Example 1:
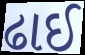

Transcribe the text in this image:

ઢાઈ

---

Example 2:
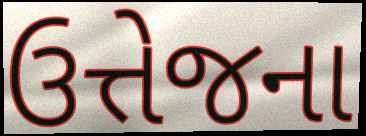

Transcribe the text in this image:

ઉત્તેજના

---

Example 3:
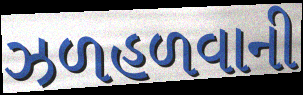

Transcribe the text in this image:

ઝળહળવાની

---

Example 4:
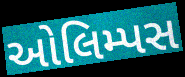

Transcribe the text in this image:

ઓલિમ્પસ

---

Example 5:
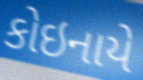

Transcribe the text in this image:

કોઇનાયે